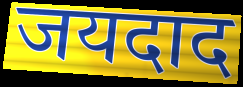
जयदाद